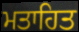
ਮਤਾਹਿਤ